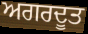
ਅਗਰਦੂਤ